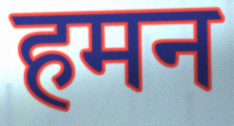
हमन